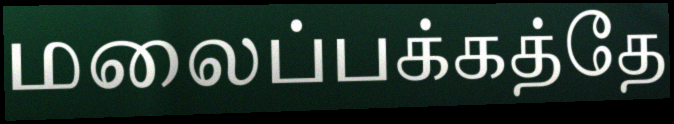
மலைப்பக்கத்தே